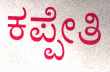
ಕಪ್ಪೇತಿ